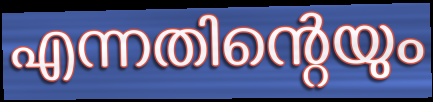
എന്നതിന്റെയും